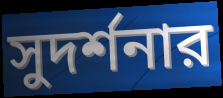
সুদর্শনার